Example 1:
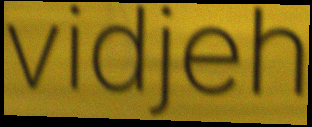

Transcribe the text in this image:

vidjeh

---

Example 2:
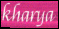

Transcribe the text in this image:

kharya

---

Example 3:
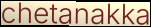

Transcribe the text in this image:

chetanakka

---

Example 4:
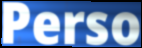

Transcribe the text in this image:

Perso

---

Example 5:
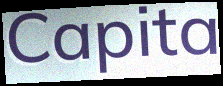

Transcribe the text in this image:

Capita